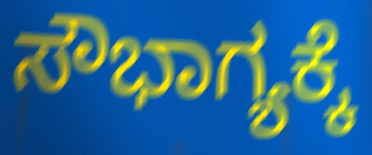
ಸೌಭಾಗ್ಯಕ್ಕೆ